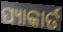
ପ୍ୟାକାର୍ଡ